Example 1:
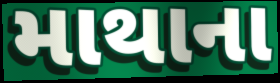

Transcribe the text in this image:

માથાના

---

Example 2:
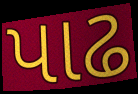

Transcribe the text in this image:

પાઢ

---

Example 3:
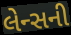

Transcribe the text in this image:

લેન્સની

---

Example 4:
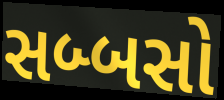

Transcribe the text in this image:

સબ્બસો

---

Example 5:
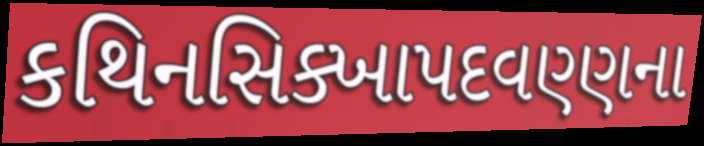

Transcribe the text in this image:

કથિનસિક્ખાપદવણ્ણના